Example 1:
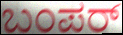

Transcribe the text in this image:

ಬಂಪರ್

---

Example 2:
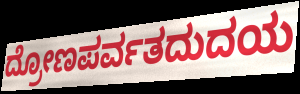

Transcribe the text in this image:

ದ್ರೋಣಪರ್ವತದುದಯ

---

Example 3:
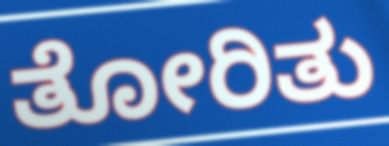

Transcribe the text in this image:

ತೋರಿತು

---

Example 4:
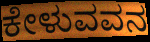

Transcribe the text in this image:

ಕೇಳುವವನ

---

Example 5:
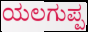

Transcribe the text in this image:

ಯಲಗುಪ್ಪ